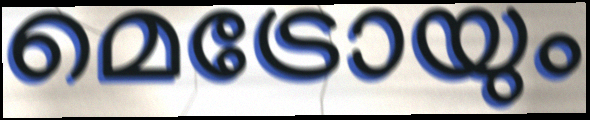
മെട്രോയും